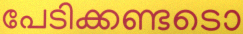
പേടിക്കണ്ടടൊ